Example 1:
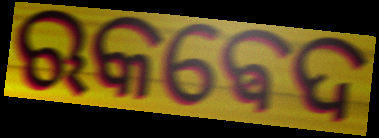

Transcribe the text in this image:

ଋକଵେଦ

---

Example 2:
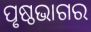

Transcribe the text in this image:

ପୃଷ୍ଠଭାଗର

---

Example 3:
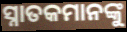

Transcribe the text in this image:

ସ୍ନାତକମାନଙ୍କୁ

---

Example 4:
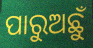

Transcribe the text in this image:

ପାରୁଅଛୁଁ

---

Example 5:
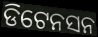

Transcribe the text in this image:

ଡିଟେନସନ